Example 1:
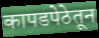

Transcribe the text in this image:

कापडपेठेतून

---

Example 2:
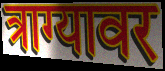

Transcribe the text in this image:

त्राग्यावर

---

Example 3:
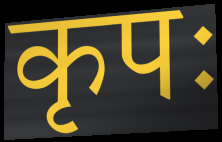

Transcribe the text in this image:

कृपः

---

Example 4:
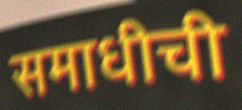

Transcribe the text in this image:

समाधीची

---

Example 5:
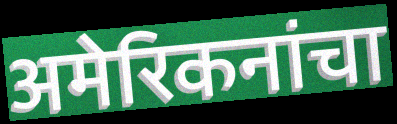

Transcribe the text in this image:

अमेरिकनांचा